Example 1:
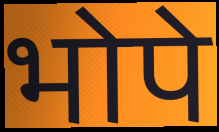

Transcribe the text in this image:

भोपे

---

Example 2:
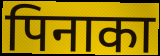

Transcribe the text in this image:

पिनाका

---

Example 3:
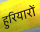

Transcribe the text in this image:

हुरियारों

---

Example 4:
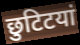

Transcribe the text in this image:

छुटिटयां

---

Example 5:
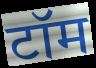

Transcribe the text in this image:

टॉम